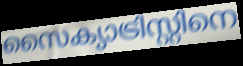
സൈക്യാട്രിസ്റ്റിനെ